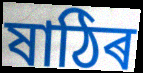
ষাঠিৰ